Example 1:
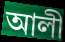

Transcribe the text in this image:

আলী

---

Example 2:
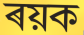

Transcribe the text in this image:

ৰয়ক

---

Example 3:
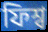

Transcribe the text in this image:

ফিশ্ব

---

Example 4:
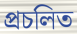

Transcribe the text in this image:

প্ৰচলিত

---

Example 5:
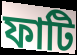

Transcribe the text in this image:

ফাটি